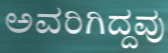
ಅವರಿಗಿದ್ದವು